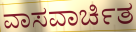
ವಾಸವಾರ್ಚಿತ